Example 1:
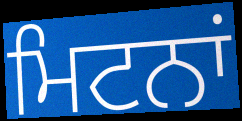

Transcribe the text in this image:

ਮਿਟਨਾਂ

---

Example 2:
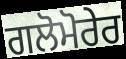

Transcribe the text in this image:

ਗਲੋਮੋਰੇਰ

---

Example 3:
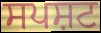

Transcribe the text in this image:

ਸਪਸ਼ਟ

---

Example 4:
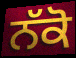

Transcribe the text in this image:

ਨੱਕੋ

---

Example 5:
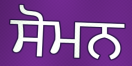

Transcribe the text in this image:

ਸੋਮਨ